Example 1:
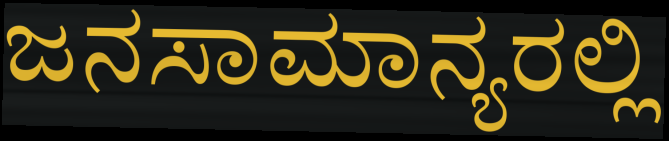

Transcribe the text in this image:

ಜನಸಾಮಾನ್ಯರಲ್ಲಿ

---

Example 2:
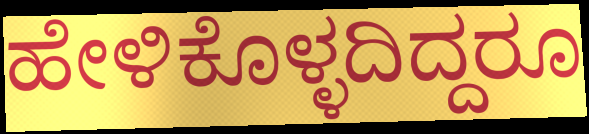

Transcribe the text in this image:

ಹೇಳಿಕೊಳ್ಳದಿದ್ದರೂ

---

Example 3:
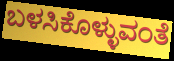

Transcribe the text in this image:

ಬಳಸಿಕೊಳ್ಳುವಂತೆ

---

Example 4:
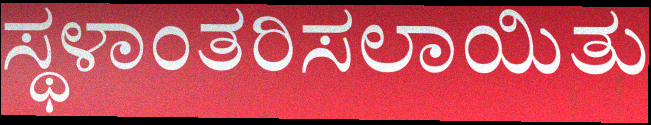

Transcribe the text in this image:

ಸ್ಥಳಾಂತರಿಸಲಾಯಿತು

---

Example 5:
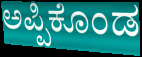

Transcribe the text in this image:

ಅಪ್ಪಿಕೊಂಡ